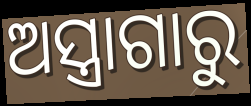
ଅସ୍ତ୍ରାଗାରୁ